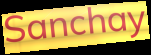
Sanchay